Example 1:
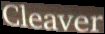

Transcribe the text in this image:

Cleaver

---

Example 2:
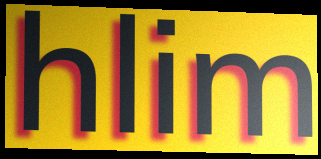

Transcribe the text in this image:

hlim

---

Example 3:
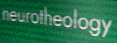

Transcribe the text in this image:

neurotheology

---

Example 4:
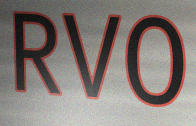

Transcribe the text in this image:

RVO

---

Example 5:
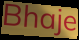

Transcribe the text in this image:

Bhaje